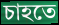
চাহতে